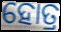
ହୋତ୍ର